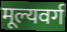
मूल्यवर्ग